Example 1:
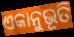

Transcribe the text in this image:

ଏକାନୁଭୂତି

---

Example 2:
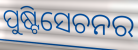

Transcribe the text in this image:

ପୁଷ୍ଟିସେଚନର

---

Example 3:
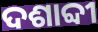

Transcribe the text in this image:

ଦଶାବ୍ଦୀ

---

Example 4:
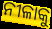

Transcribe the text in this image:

ନୀଳାକୁ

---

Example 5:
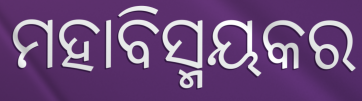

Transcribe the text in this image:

ମହାବିସ୍ମୟକର